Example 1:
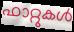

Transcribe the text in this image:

ഫാറ്റുകൾ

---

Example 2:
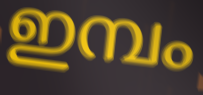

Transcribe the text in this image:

ഇമ്പം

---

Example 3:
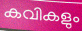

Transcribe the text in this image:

കവികളും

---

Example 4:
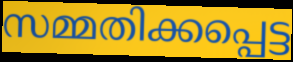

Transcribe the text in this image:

സമ്മതിക്കപ്പെട്ട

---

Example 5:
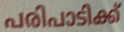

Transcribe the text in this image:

പരിപാടിക്ക്